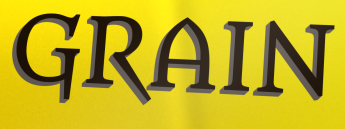
GRAIN